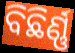
ବିଛିର୍ଣ୍ଣ